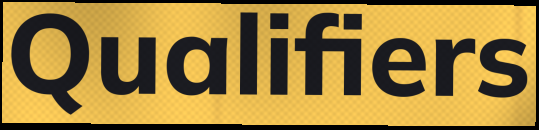
Qualifiers